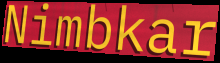
Nimbkar